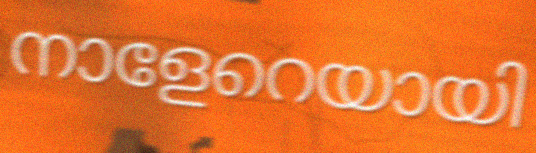
നാളേറെയായി